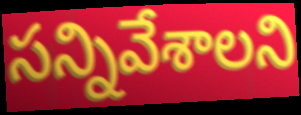
సన్నివేశాలని